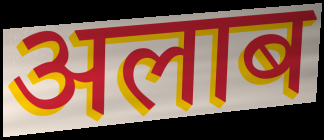
अलाब